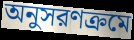
অনুসরণক্রমে